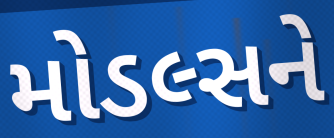
મોડલ્સને